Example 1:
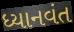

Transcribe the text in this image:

ધ્યાનવંત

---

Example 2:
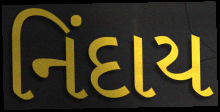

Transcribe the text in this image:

નિંદાય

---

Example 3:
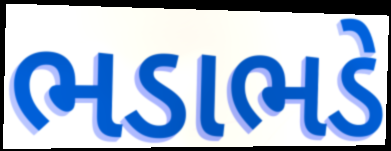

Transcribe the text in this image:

ભડાભડે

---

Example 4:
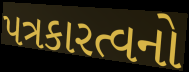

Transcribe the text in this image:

પત્રકારત્વનો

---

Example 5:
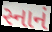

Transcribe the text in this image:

સ્નાનં